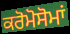
ਕਰੋਮੋਸੋਮਾਂ